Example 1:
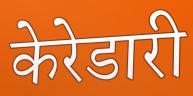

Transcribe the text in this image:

केरेडारी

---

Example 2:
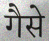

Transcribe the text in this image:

गैसे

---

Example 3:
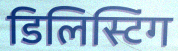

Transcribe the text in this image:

डिलिस्टिंग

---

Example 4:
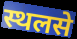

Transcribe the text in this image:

स्थलसे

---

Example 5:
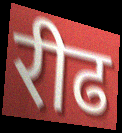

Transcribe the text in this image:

रीढ